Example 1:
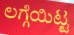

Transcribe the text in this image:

ಲಗ್ಗೆಯಿಟ್ಟ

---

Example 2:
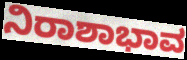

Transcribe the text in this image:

ನಿರಾಶಾಭಾವ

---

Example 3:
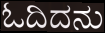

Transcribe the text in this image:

ಓದಿದನು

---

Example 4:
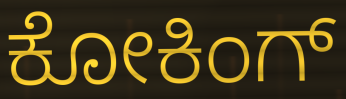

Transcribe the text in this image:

ಕೋಕಿಂಗ್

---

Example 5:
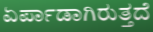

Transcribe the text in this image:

ಏರ್ಪಾಡಾಗಿರುತ್ತದೆ